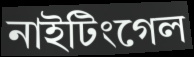
নাইটিংগেল